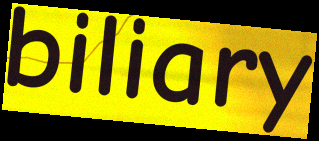
biliary